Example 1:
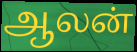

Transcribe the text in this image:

ஆலன்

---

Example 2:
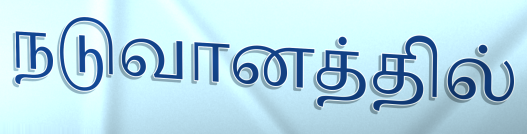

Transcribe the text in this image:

நடுவானத்தில்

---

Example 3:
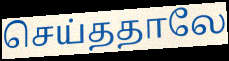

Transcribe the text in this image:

செய்ததாலே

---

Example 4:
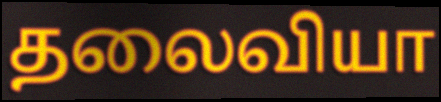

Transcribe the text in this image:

தலைவியா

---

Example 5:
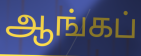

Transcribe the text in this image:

ஆங்கப்